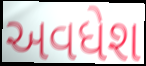
અવધેશ